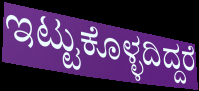
ಇಟ್ಟುಕೊಳ್ಳದಿದ್ದರೆ